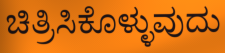
ಚಿತ್ರಿಸಿಕೊಳ್ಳುವುದು